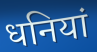
धनियां